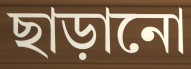
ছাড়ানো